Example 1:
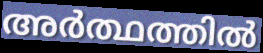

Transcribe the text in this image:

അർത്ഥത്തിൽ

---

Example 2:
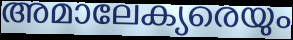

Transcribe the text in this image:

അമാലേക്യരെയും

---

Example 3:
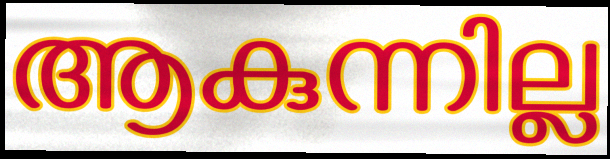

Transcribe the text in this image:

ആകുന്നില്ല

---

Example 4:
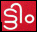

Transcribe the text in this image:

ട്ടിം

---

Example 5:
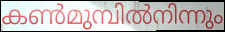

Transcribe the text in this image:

കൺമുമ്പിൽനിന്നും